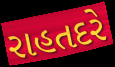
રાહતદરે